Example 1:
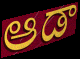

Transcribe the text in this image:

ఆడా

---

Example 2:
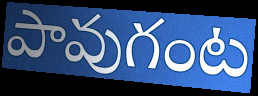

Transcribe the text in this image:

పావుగంట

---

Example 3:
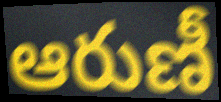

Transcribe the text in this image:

ఆరుణీ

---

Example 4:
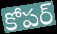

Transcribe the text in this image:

కోపర్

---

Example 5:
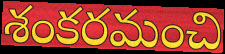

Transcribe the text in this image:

శంకరమంచి